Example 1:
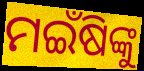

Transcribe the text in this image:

ମଇଁଷିଙ୍କୁ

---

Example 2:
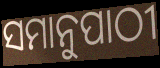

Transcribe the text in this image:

ସମାନୁପାଠୀ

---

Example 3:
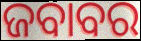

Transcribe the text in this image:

ଜବାବର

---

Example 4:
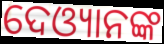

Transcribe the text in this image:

ଦେଓ୍ୟାନଙ୍କ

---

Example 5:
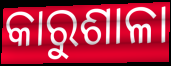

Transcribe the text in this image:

କାରୁଶାଳା